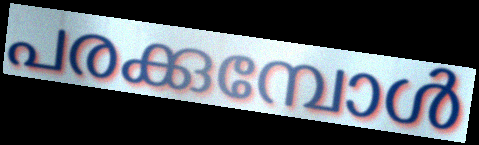
പരക്കുമ്പോൾ